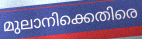
മുലാനിക്കെതിരെ